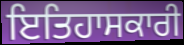
ਇਤਿਹਾਸਕਾਰੀ